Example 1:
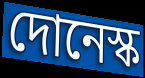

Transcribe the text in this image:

দোনেস্ক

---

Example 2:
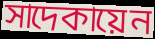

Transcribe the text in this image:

সাদেকায়েন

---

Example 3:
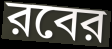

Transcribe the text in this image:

রবের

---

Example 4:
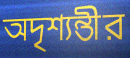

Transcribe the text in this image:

অদৃশ্যন্তীর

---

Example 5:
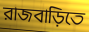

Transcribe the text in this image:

রাজবাড়িতে